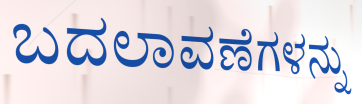
ಬದಲಾವಣೆಗಳನ್ನು